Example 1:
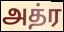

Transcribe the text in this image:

அத்ர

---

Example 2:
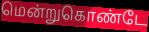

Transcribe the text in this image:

மென்றுகொண்டே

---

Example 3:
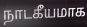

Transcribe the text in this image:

நாடகீயமாக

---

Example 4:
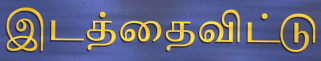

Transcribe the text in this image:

இடத்தைவிட்டு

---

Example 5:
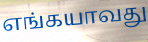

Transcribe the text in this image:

எங்கயாவது